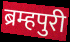
ब्रम्हपुरी